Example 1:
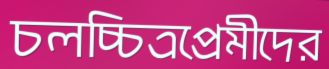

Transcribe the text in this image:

চলচ্চিত্রপ্রেমীদের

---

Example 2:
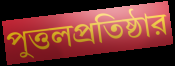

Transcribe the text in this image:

পুত্তলপ্রতিষ্ঠার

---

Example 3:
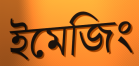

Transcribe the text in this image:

ইমেজিং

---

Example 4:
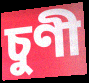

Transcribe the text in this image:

চুণী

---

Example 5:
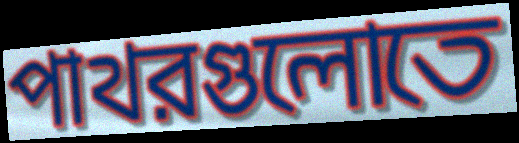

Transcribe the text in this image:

পাথরগুলোতে